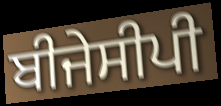
ਬੀਜੇਸੀਪੀ